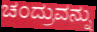
ಚಂದ್ರುವನ್ನು